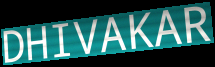
DHIVAKAR